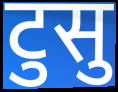
टुसु